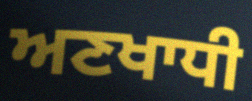
ਅਣਖਾਧੀ